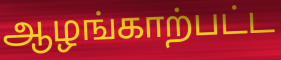
ஆழங்காற்பட்ட